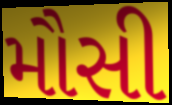
મૌસી